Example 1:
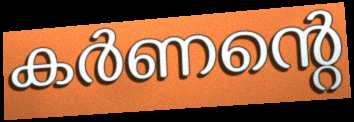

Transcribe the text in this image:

കർണന്റെ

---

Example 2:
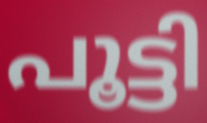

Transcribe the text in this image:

പൂട്ടി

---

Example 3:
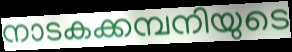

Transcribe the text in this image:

നാടകക്കമ്പനിയുടെ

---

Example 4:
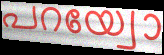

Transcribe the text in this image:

പറയ്വോ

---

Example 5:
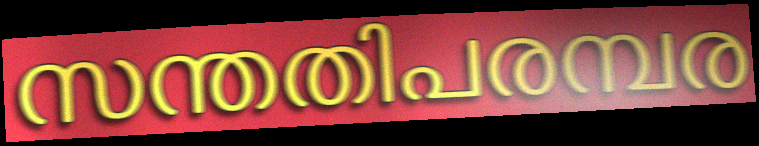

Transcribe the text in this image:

സന്തതിപരമ്പര